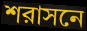
শরাসনে